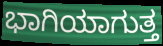
ಭಾಗಿಯಾಗುತ್ತ